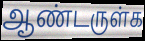
ஆண்டருள்க